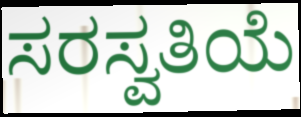
ಸರಸ್ವತಿಯೆ